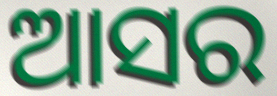
ଆସର